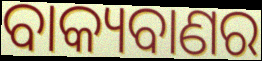
ବାକ୍ୟବାଣର